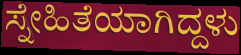
ಸ್ನೇಹಿತೆಯಾಗಿದ್ದಳು